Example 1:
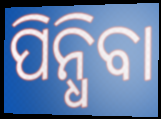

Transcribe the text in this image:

ପିନ୍ଧିବା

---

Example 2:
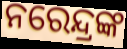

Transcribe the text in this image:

ନରେନ୍ଦ୍ରଙ୍କ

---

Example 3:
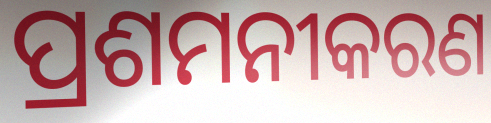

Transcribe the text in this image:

ପ୍ରଶମନୀକରଣ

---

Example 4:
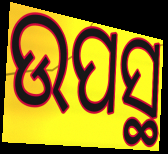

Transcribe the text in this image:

ଉପସ୍ଥ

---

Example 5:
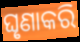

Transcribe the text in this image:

ଘୃଣାକରି